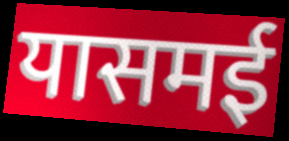
यासमई